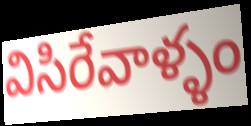
విసిరేవాళ్ళం